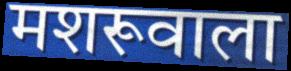
मशरूवाला